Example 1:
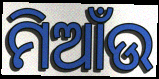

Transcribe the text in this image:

ମିଆଁଉ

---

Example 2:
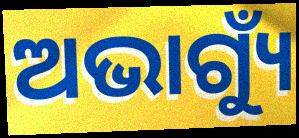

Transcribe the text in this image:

ଅଭାଗ୍ୟୁଁ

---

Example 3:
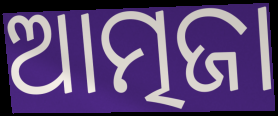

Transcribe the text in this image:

ଆତ୍ମଜା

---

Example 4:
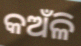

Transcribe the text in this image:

କଅଁଳି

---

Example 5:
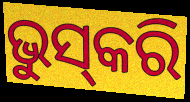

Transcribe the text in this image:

ଭୁସ୍‌କରି